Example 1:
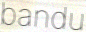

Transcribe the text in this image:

bandu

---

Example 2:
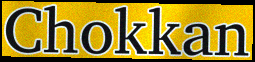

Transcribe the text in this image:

Chokkan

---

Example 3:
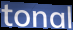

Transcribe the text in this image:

tonal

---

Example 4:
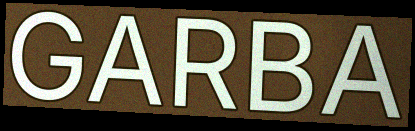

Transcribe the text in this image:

GARBA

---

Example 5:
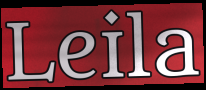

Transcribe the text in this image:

Leila